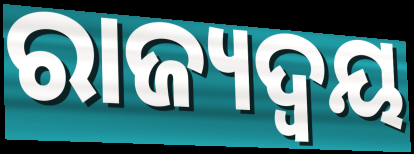
ରାଜ୍ୟଦ୍ୱୟ